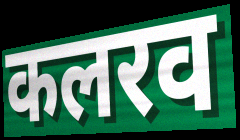
कलरव